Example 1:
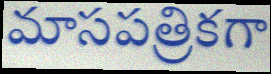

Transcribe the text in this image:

మాసపత్రికగా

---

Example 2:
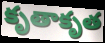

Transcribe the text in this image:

కృతాకృత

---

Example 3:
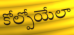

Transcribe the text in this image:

కోల్పోయేలా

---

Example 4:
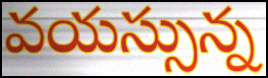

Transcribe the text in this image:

వయస్సున్న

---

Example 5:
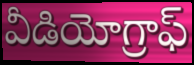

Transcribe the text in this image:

వీడియోగ్రాఫ్